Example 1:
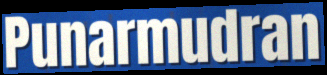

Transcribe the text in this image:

Punarmudran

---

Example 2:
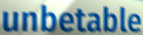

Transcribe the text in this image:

unbetable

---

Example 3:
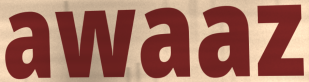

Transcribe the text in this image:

awaaz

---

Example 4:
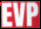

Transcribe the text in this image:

EVP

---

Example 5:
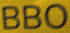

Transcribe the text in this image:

BBO